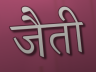
जैती